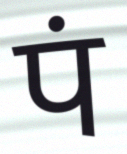
पं